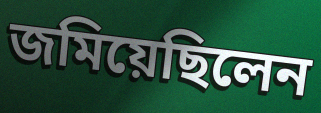
জমিয়েছিলেন